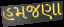
હમજણા